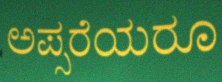
ಅಪ್ಸರೆಯರೂ